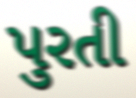
પુરતી